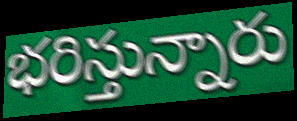
భరిస్తున్నారు